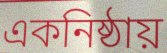
একনিষ্ঠায়